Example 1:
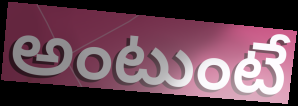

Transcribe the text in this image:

అంటుంటే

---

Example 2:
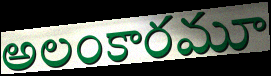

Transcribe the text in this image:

అలంకారమూ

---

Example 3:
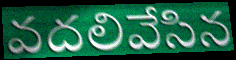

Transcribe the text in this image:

వదలివేసిన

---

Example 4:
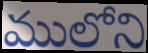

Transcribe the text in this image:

ములోని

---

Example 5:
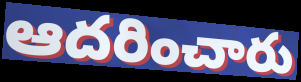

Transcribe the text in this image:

ఆదరించారు